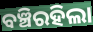
ବଞ୍ଚିରହିଲା